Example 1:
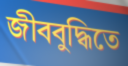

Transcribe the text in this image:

জীববুদ্ধিতে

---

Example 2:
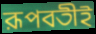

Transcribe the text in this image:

রূপবতীই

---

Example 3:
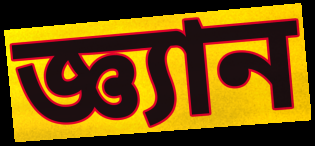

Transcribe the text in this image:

জ্ঞ্যান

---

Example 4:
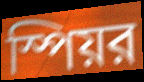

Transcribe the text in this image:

স্পিয়র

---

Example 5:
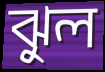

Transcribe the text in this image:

ঝুল